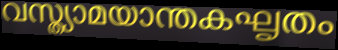
വസ്ത്യാമയാന്തകഘൃതം